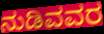
ನುಡಿವವರ